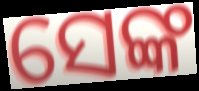
ସେଙ୍କ